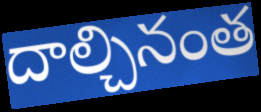
దాల్చినంత